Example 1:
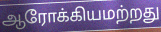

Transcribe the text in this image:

ஆரோக்கியமற்றது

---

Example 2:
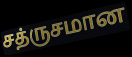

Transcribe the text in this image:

சத்ருசமான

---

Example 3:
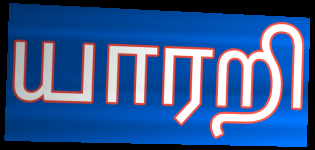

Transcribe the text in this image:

யாரறி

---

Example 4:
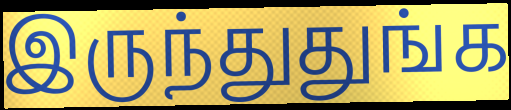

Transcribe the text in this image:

இருந்துதுங்க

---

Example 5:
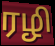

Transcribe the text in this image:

ரழி